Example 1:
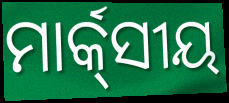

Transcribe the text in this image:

ମାର୍କ୍‍ସୀୟ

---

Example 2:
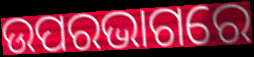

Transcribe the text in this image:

ଉପରଭାଗରେ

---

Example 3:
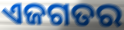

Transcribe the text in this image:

ଏଜଗତର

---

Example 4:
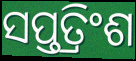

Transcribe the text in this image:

ସପ୍ତତ୍ରିଂଶ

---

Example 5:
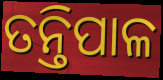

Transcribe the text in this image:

ତନ୍ତିପାଳ